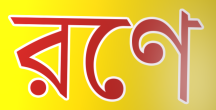
রণে